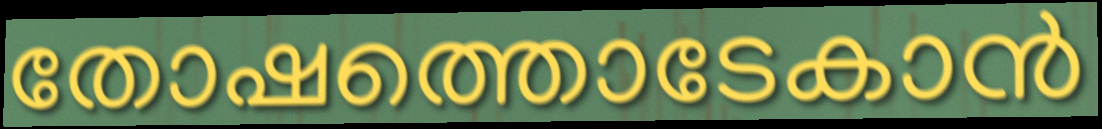
തോഷത്തൊടേകാൻ